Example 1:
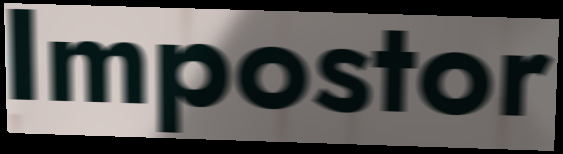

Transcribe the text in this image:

Impostor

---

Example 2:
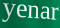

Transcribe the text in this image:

yenar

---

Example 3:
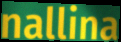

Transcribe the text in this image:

nallina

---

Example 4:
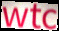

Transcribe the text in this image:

wtc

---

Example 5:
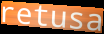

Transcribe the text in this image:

retusa